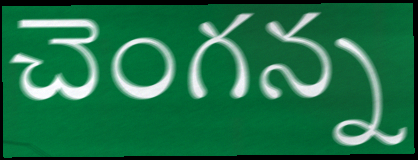
చెంగన్న